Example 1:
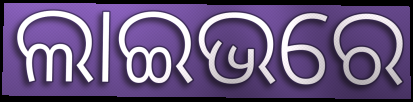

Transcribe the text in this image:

ଲାଇଭରେ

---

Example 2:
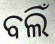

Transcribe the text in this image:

ବଲିଁ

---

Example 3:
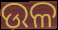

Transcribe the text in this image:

ଉଳ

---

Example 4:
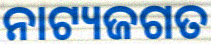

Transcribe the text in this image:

ନାଟ୍ୟଜଗତ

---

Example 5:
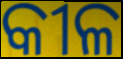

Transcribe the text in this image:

କୀଳ